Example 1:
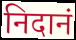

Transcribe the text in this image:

निदानं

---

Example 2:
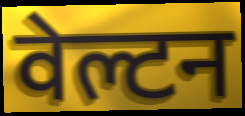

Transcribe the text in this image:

वेल्टन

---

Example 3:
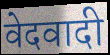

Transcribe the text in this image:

वेदवादी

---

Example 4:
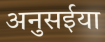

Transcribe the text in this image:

अनुसईया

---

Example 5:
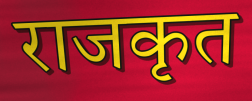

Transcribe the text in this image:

राजकृत